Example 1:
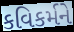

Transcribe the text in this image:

કવિકર્મને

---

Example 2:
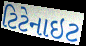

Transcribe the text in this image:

ટિટેનાઇટ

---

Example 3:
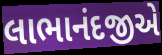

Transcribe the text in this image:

લાભાનંદજીએ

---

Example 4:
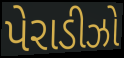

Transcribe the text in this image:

પેરાડીઝો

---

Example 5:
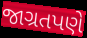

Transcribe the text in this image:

જાગ્રતપણે